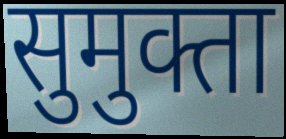
सुमुक्ता